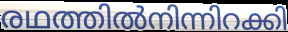
രഥത്തിൽനിന്നിറക്കി